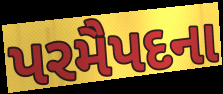
પરમૈપદના